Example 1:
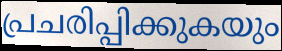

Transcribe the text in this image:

പ്രചരിപ്പിക്കുകയും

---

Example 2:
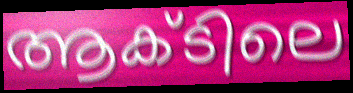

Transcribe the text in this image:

ആക്ടിലെ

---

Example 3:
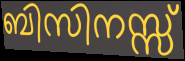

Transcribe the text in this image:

ബിസിനസ്സ്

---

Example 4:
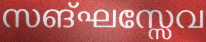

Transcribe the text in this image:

സങ്ഘസ്സേവ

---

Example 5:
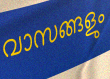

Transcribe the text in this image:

വാസങ്ങളും